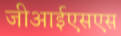
जीआईएसएस